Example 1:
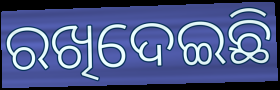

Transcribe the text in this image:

ରଖିଦେଇଛି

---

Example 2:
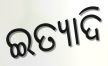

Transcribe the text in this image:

ଇତ୍ଯାଦି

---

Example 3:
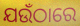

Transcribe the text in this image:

ଯଉଁଠାରେ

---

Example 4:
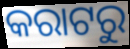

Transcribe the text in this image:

କରାଟରୁ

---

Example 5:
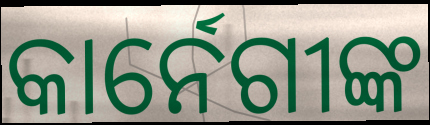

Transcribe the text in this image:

କାର୍ନେଗୀଙ୍କ